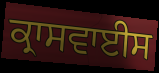
ਕ੍ਰਾਸਵਾਈਸ